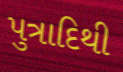
પુત્રાદિથી